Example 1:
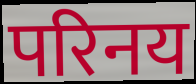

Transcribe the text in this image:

परिनय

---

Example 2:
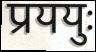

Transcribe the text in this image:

प्रययुः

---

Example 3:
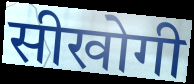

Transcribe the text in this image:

सीखोगी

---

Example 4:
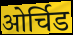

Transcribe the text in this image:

ओर्चिड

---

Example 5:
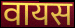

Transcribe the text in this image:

वायस